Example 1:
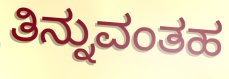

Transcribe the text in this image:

ತಿನ್ನುವಂತಹ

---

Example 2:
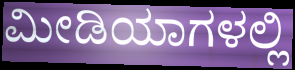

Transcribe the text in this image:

ಮೀಡಿಯಾಗಳಲ್ಲಿ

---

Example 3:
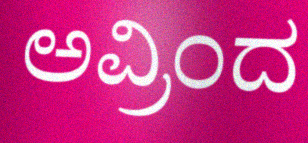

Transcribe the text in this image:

ಅವ್ರಿಂದ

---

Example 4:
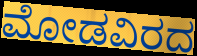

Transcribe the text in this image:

ಮೋಡವಿರದ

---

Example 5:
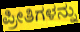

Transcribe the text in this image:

ಪ್ರೀತಿಗಳನ್ನು